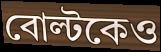
বোল্টকেও